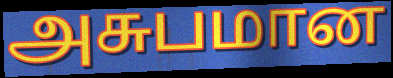
அசுபமான